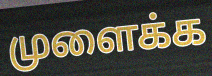
முளைக்க